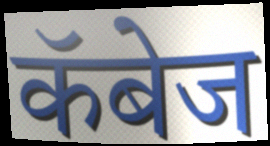
कॅबेज